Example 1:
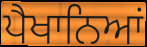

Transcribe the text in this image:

ਪੈਖਾਨਿਆਂ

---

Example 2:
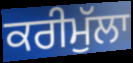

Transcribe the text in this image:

ਕਰੀਮੁੱਲਾ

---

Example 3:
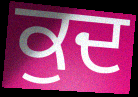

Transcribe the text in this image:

ਕੁਦ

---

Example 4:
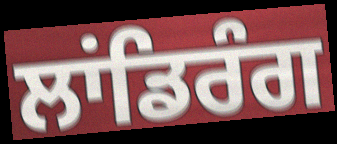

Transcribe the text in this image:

ਲਾਂਡਿਰੰਗ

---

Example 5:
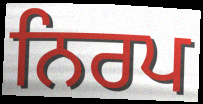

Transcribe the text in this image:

ਨਿਰਪ